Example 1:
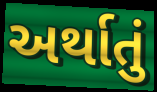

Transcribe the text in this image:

અર્થાતું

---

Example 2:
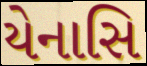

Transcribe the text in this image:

યેનાસિ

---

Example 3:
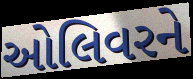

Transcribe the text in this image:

ઓલિવરને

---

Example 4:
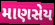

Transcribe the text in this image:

માણસેય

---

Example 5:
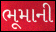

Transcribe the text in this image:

ભૂમાની